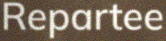
Repartee